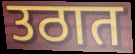
उठात